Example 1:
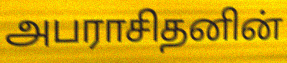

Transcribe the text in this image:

அபராசிதனின்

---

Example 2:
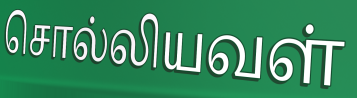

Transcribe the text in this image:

சொல்லியவள்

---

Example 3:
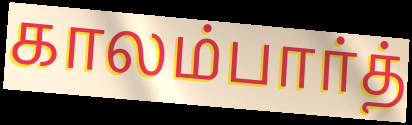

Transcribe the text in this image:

காலம்பார்த்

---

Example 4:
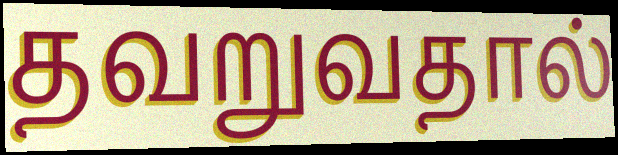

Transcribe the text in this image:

தவறுவதால்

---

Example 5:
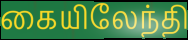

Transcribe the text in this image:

கையிலேந்தி